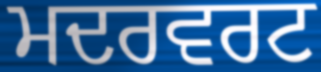
ਮਦਰਵਰਟ